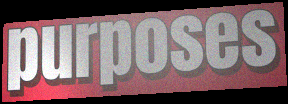
purposes